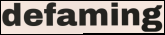
defaming